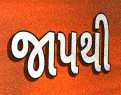
જાપથી